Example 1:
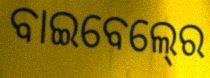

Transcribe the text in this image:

ବାଇବେଲ୍‍ରେ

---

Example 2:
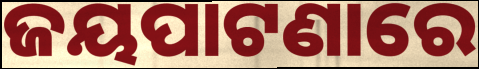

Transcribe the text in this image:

ଜୟପାଟଣାରେ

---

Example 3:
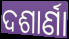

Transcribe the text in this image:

ଦଶାର୍ଣା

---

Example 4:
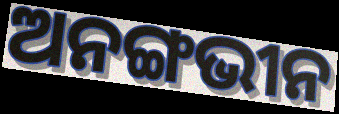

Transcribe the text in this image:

ଅନଙ୍ଗଭୀନ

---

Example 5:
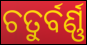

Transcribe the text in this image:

ଚତୁର୍ବର୍ଣ୍ଣ